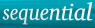
sequential